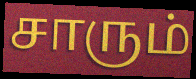
சாரும்